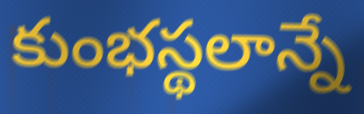
కుంభస్థలాన్నే